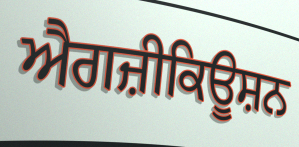
ਐਗਜ਼ੀਕਿਊਸ਼ਨ